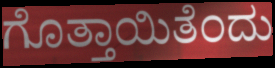
ಗೊತ್ತಾಯಿತೆಂದು